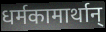
धर्मकामार्थान्